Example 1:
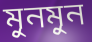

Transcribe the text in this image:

মুনমুন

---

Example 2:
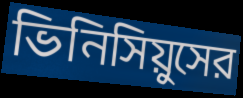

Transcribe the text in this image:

ভিনিসিয়ুসের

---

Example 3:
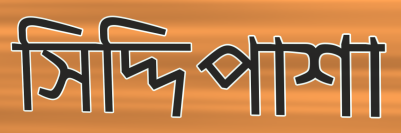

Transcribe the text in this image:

সিদ্দিপাশা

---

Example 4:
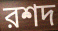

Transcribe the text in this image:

রশদ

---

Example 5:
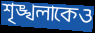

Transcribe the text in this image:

শৃঙ্খলাকেও